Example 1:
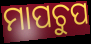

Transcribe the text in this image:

ମାପଚୁପ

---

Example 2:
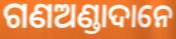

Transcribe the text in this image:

ଗଣଅଣ୍ଡାଦାନେ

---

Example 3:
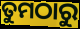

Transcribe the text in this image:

ତୁମଠାରୁ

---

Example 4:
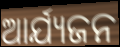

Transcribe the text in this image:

ଆର୍ଯ୍ୟଜନ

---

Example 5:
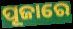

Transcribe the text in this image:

ପୂଜାରେ